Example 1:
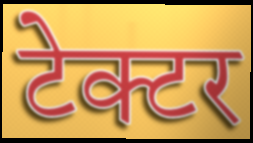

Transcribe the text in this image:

टेक्टर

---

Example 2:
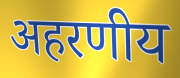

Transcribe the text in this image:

अहरणीय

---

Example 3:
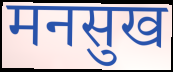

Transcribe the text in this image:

मनसुख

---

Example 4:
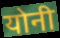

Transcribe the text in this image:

योनी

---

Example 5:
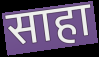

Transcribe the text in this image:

साहा